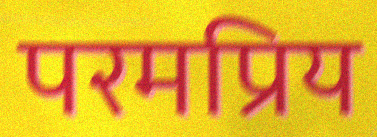
परमप्रिय